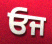
ਓਜ